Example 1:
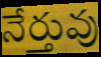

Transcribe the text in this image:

నేర్తువు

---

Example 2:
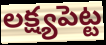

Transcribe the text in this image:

లక్ష్యపెట్ట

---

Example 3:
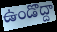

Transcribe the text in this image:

ఉండొద్దా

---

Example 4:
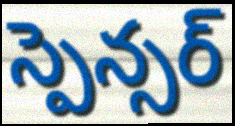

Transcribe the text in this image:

స్పెన్సర్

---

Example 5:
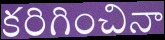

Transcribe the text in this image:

కరిగించినా